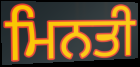
ਮਿਨਤੀ